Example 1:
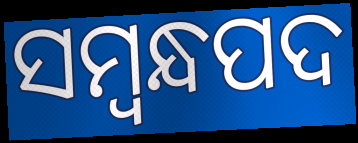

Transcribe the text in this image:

ସମ୍ବନ୍ଧପଦ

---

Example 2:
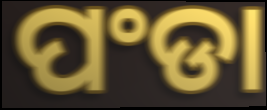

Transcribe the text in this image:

ପଂଡା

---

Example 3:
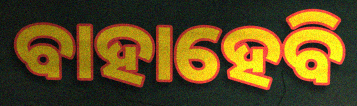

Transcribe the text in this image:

ବାହାହେବି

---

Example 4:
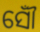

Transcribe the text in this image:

ସୌଁ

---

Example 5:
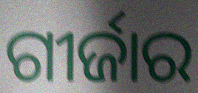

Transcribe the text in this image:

ଗୀର୍ଜାର